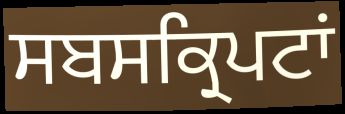
ਸਬਸਕ੍ਰਿਪਟਾਂ